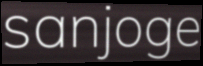
sanjoge